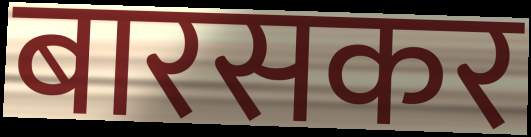
बारसकर